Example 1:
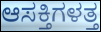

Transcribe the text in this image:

ಆಸಕ್ತಿಗಳತ್ತ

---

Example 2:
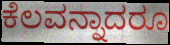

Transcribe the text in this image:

ಕೆಲವನ್ನಾದರೂ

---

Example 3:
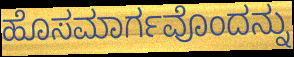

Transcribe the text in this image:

ಹೊಸಮಾರ್ಗವೊಂದನ್ನು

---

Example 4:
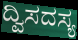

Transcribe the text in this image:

ದ್ವಿಸದಸ್ಯ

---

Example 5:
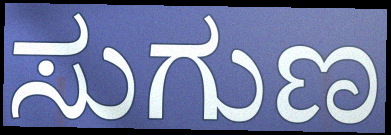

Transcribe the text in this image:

ಸುಗುಣ